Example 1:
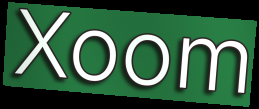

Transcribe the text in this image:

Xoom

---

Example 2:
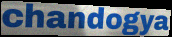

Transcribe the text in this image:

chandogya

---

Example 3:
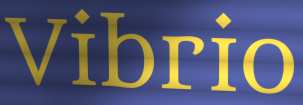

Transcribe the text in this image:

Vibrio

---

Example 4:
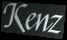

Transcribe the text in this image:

Kenz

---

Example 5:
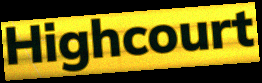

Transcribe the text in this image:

Highcourt